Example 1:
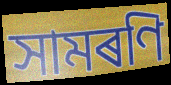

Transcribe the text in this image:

সামৰণি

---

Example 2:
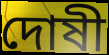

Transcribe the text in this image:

দোষী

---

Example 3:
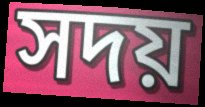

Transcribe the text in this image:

সদয়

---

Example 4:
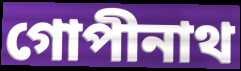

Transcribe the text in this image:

গোপীনাথ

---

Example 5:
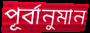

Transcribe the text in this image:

পূৰ্বানুমান